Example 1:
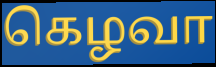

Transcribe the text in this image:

கெழவா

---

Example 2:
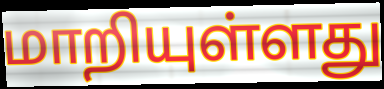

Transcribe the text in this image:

மாறியுள்ளது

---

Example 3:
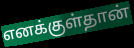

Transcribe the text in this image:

எனக்குள்தான்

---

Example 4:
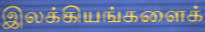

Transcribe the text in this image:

இலக்கியங்களைக்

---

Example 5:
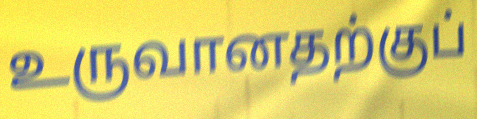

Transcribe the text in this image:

உருவானதற்குப்